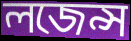
লজেন্স